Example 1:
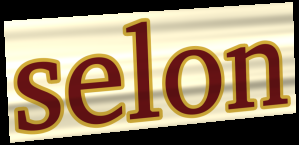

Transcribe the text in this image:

selon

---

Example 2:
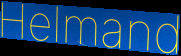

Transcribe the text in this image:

Helmand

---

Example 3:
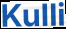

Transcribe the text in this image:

Kulli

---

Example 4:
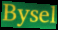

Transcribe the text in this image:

Bysel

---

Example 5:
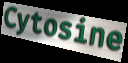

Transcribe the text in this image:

Cytosine